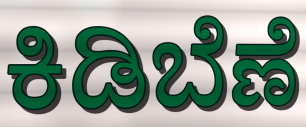
ಕಿಡಿಬೆಣೆ